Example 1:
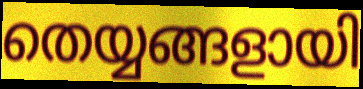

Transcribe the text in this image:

തെയ്യങ്ങളായി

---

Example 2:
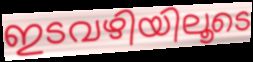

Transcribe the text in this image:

ഇടവഴിയിലൂടെ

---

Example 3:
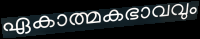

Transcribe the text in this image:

ഏകാത്മകഭാവവും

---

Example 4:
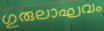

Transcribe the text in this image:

ഗുരുലാഘവം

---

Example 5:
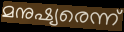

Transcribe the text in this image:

മനുഷ്യരെന്ന്